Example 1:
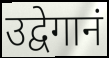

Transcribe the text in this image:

उद्वेगानं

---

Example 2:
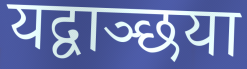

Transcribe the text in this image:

यद्वाञ्छया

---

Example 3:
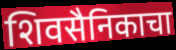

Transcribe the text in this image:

शिवसैनिकाचा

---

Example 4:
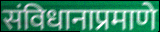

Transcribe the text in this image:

संविधानाप्रमाणे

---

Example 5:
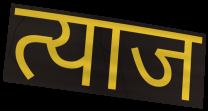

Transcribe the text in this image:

त्याज